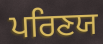
ਪਰਿਣਯ